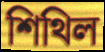
শিথিল